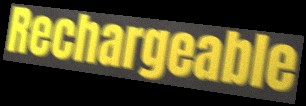
Rechargeable